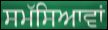
ਸਮੱਸਿਆਵਾਂ